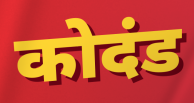
कोदंड